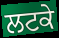
ਲਟਕੇ